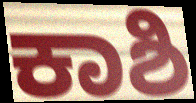
ಕಾಶಿ